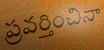
ప్రవర్తించినా